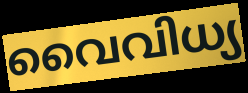
വൈവിധ്യ